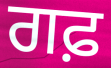
ਗਫ਼